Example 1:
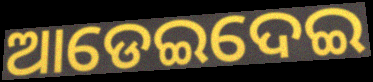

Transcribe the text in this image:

ଆଡେଇଦେଇ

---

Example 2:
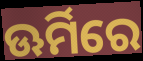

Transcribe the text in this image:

ଊର୍ମିରେ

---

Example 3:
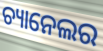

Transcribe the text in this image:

ଚ୍ୟାନେଲର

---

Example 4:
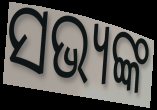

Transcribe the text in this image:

ସଭ୍ୟଙ୍କ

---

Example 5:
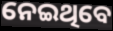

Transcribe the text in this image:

ନେଇଥିବେ